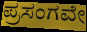
ಪ್ರಸಂಗವೇ